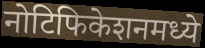
नोटिफिकेशनमध्ये